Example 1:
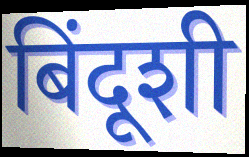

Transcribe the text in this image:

बिंदूशी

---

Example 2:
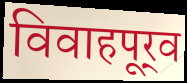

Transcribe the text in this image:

विवाहपूर्व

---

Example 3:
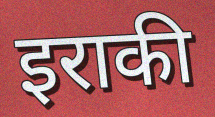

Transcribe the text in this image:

इराकी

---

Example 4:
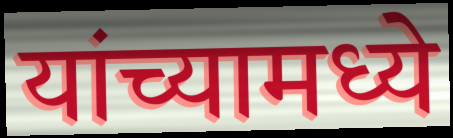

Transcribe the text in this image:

यांच्यामध्ये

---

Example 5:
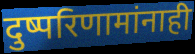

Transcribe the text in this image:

दुष्परिणामांनाही